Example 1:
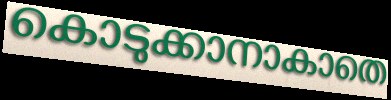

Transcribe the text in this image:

കൊടുക്കാനാകാതെ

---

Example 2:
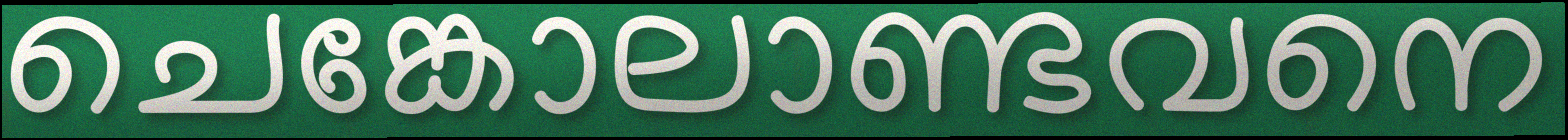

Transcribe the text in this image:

ചെങ്കോലാണ്ടവനെ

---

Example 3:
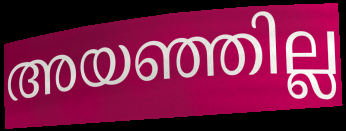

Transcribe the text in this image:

അയഞ്ഞില്ല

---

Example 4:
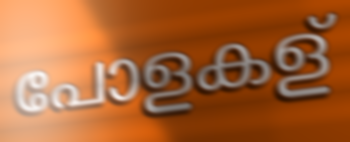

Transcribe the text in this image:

പോളകള്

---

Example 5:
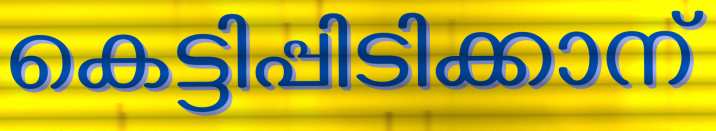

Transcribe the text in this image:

കെട്ടിപ്പിടിക്കാന്